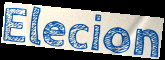
Elecion